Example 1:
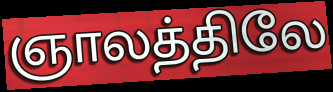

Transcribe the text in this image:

ஞாலத்திலே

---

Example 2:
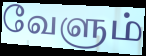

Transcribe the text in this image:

வேளும்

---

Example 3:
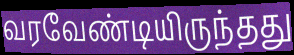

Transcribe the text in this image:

வரவேண்டியிருந்தது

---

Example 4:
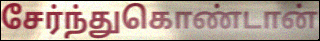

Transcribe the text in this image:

சேர்ந்துகொண்டான்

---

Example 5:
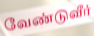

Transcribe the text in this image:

வேண்டுவீர்